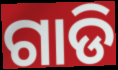
ଗାଡି